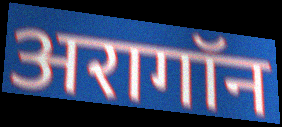
अरागॉन